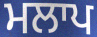
ਮਲਾਪ